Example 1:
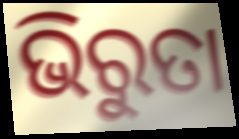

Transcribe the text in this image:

ଭିରୁତା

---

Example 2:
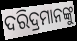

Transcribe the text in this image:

ଦରିଦ୍ରମାନଙ୍କୁ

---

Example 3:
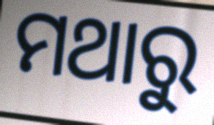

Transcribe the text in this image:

ମଥାରୁ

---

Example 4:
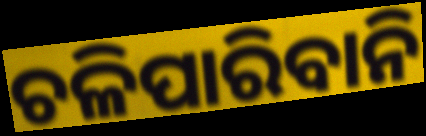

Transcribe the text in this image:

ଚଳିପାରିବାନି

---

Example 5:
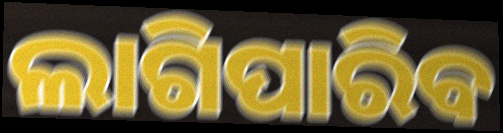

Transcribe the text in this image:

ଲାଗିପାରିବ